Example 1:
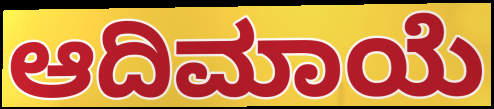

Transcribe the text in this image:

ಆದಿಮಾಯೆ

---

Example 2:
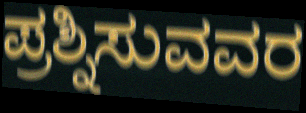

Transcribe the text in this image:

ಪ್ರಶ್ನಿಸುವವರ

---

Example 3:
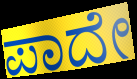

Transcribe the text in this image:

ಪಾದೇ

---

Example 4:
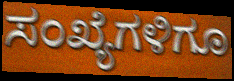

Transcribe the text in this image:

ಸಂಖ್ಯೆಗಳಿಗೂ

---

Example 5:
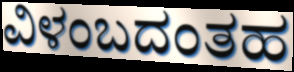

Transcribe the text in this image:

ವಿಳಂಬದಂತಹ